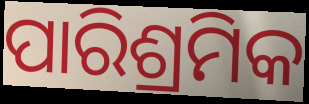
ପାରିଶ୍ରମିକ